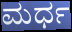
ಮರ್ಧ